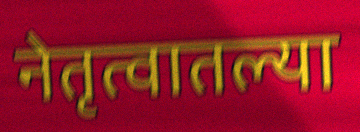
नेतृत्वातल्या